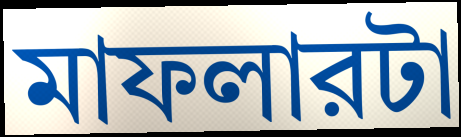
মাফলারটা